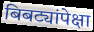
बिबट्यांपेक्षा